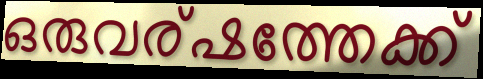
ഒരുവര്ഷത്തേക്ക്